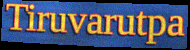
Tiruvarutpa